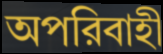
অপরিবাহী